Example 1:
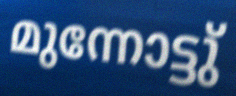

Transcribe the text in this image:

മുന്നോട്ടു്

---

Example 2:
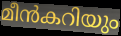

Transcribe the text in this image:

മീൻകറിയും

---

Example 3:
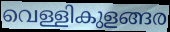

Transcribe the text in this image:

വെള്ളികുളങ്ങര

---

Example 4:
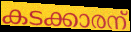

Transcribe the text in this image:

കടക്കാരന്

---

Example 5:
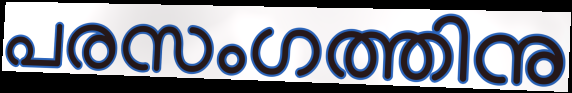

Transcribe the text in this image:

പരസംഗത്തിനു